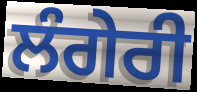
ਲੰਗੇਰੀ